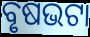
ବୃଷଭଟା